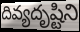
దివ్యదృష్టిని